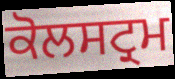
ਕੋਲਸਟ੍ਰਮ